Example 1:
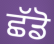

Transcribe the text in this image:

ਛੱਡੋ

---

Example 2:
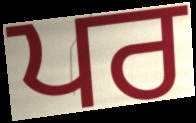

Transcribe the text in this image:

ਪਰ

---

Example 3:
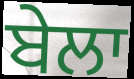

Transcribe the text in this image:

ਬੇਲਾ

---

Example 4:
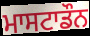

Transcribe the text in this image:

ਮਾਸਟਾਡੌਨ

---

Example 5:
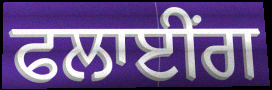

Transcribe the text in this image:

ਫਲਾਈਂਗ